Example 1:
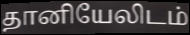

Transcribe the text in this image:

தானியேலிடம்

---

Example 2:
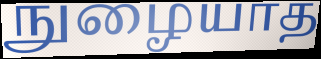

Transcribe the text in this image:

நுழையாத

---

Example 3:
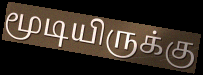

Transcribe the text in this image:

மூடியிருக்கு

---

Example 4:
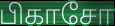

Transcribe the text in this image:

பிகாசோ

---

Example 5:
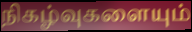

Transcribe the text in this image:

நிகழ்வுகளையும்